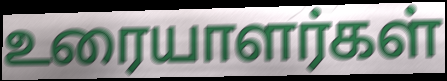
உரையாளர்கள்